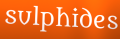
sulphides